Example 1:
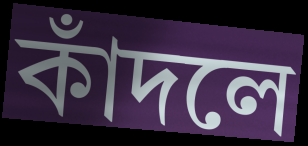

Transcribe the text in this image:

কাঁদলে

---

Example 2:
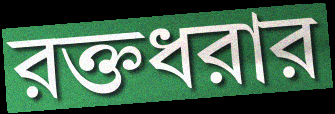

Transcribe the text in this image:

রক্তধরার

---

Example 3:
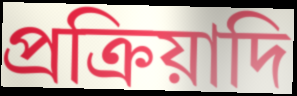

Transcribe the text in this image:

প্রক্রিয়াদি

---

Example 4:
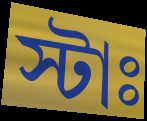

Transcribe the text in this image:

স্টাঃ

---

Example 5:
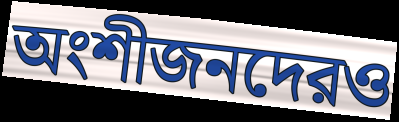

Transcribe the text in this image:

অংশীজনদেরও